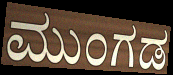
ಮುಂಗಡ